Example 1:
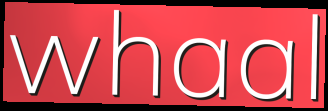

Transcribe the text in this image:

whaal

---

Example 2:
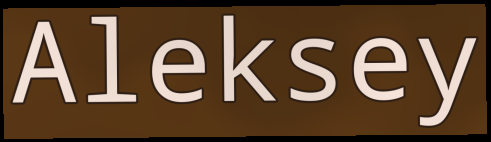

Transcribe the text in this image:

Aleksey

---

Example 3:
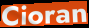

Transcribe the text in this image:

Cioran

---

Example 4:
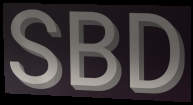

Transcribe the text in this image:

SBD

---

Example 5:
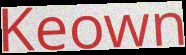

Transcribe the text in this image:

Keown